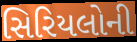
સિરિયલોની